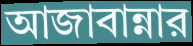
আজাবান্নার